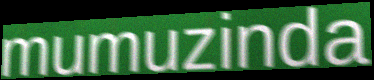
mumuzinda